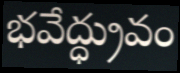
భవేద్ధ్రువం